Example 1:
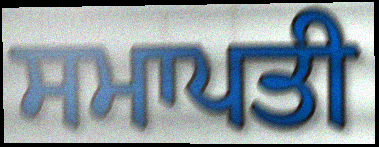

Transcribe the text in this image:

ਸਮਾਪਤੀ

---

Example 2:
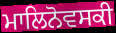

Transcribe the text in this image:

ਮਾਲਿਨੋਵਸਕੀ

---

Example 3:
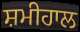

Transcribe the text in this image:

ਸ਼ਮੀਹਾਲ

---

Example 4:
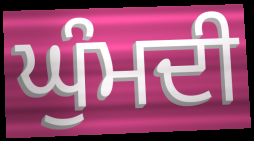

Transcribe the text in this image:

ਘੁੰਮਦੀ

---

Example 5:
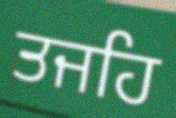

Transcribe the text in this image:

ਤਜਹਿ